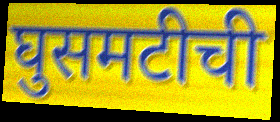
घुसमटीची